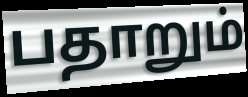
பதாறும்